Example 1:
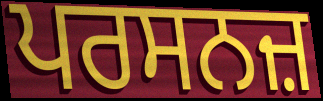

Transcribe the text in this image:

ਪਰਸਨਜ਼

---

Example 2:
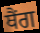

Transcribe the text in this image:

ਥੈਂਗ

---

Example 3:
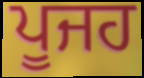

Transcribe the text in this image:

ਪੂਜਹ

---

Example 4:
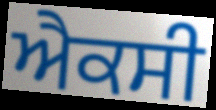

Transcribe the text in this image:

ਐਕਸੀ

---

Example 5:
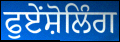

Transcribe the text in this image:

ਫੁਏਂਸ਼ੋਲਿੰਗ